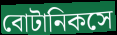
বোটানিকসে